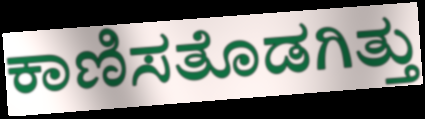
ಕಾಣಿಸತೊಡಗಿತ್ತು